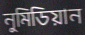
নুমিডিয়ান